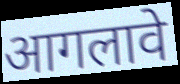
आगलावे